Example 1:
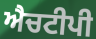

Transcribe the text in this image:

ਐਚਟੀਪੀ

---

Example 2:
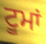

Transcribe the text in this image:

ਟੂਮਾਂ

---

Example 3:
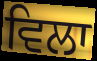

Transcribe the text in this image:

ਵਿਲਾ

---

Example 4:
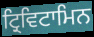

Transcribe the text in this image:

ਟ੍ਰਿਵਿਟਾਮਿਨ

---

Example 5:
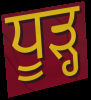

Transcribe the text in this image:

ਧੂੜ੍ਹ